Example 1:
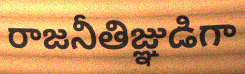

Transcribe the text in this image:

రాజనీతిజ్ఞుడిగా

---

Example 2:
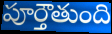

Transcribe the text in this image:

పూర్తౌతుంది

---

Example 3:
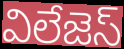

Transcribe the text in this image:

విలేజెస్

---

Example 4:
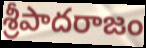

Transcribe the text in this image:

శ్రీపాదరాజం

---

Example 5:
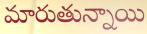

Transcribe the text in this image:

మారుతున్నాయి